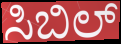
ಸಿಬಿಲ್